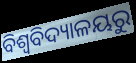
ବିଶ୍ୱବିଦ୍ୟାଳୟରୁ